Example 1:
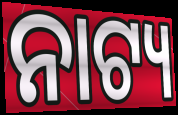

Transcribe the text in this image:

ନାଟ୍ୟ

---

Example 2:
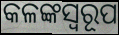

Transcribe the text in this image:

କଳଙ୍କସ୍ୱରୂପ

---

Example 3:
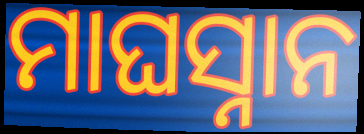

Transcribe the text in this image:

ମାଘସ୍ନାନ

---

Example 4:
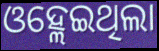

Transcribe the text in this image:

ଓହ୍ଲେଇଥିଲା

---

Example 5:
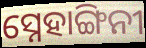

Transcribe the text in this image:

ସ୍ନେହାଙ୍ଗିନୀ